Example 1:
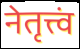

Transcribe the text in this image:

नेतृत्त्वं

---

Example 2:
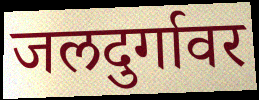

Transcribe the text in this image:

जलदुर्गावर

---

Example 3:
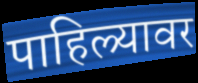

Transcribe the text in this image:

पाहिल्यावर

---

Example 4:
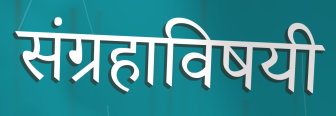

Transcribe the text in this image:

संग्रहाविषयी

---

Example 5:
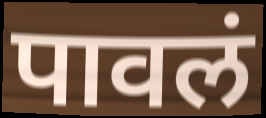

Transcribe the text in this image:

पावलं